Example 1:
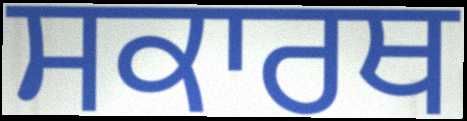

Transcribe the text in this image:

ਸਕਾਰਥ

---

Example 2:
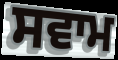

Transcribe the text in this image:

ਸਵਾਮ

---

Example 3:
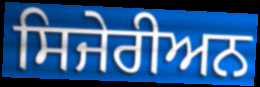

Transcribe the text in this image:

ਸਿਜੇਰੀਅਨ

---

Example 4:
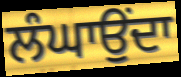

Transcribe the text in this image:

ਲੰਘਾਉਂਦਾ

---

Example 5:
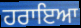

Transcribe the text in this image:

ਹਰਾਇਆ